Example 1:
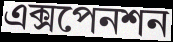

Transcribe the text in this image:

এক্সপেনশন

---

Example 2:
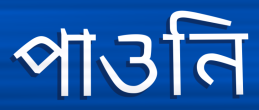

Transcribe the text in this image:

পাওনি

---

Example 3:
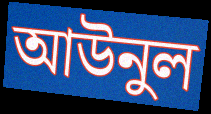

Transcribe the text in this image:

আউনুল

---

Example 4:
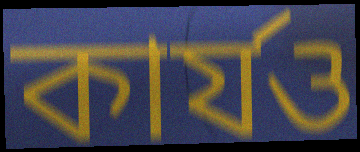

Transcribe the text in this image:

কার্যও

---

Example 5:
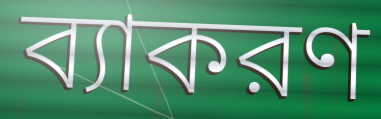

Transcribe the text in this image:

ব্যাকরণ